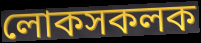
লোকসকলক